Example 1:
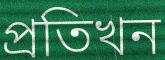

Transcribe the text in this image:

প্ৰতিখন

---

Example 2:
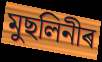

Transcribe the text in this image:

মুছলিনীৰ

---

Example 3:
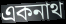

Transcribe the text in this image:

একনাথ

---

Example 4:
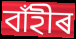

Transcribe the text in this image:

বাঁহীৰ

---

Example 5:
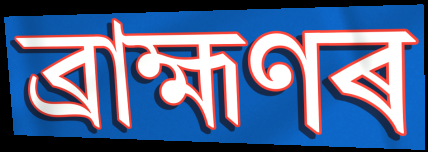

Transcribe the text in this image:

ব্ৰাহ্মণৰ